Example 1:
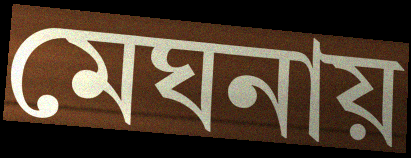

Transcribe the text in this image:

মেঘনায়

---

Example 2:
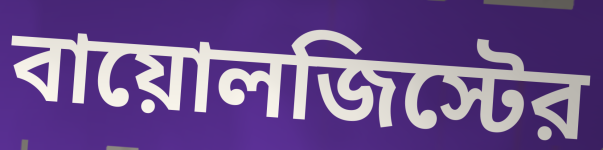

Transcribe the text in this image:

বায়োলজিস্টের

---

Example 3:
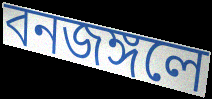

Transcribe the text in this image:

বনজঙ্গলে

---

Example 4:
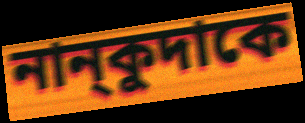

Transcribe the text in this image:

নান্‌কুদাকে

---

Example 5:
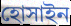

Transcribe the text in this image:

হোসাইন